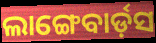
ଲାଙ୍ଗେବାର୍ଡ଼ସ